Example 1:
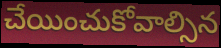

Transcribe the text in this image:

చేయించుకోవాల్సిన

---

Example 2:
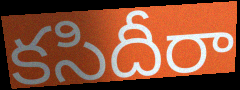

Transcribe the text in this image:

కసిదీరా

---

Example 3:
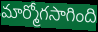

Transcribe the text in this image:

మార్మోగసాగింది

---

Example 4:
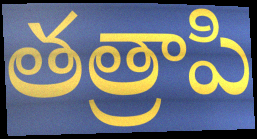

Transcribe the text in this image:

తత్రాపి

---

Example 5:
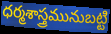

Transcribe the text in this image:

ధర్మశాస్త్రమునుబట్టి